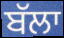
ਬੱਲਾ